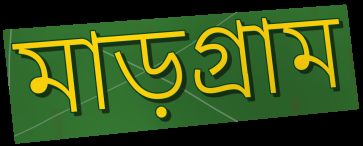
মাড়গ্রাম